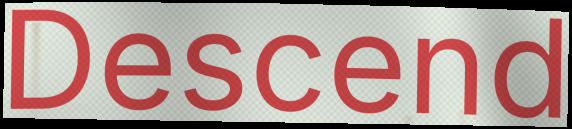
Descend